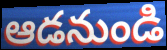
ఆడనుండి